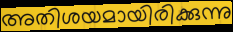
അതിശയമായിരിക്കുന്നു